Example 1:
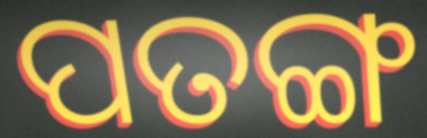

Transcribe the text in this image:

ପତଙ୍ଗ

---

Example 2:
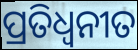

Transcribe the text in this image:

ପ୍ରତିଧ୍ବନୀତ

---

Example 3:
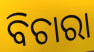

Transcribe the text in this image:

ବିଚାରା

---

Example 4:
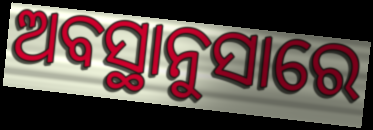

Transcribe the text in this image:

ଅବସ୍ଥାନୁସାରେ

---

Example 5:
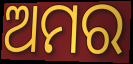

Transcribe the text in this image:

ଅମର